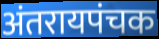
अंतरायपंचक